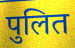
पुलित